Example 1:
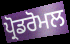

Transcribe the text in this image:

ਪ੍ਰੋਡਰੋਮਲ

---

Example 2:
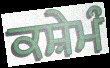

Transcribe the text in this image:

ਕਸ਼ੇਮੰ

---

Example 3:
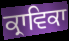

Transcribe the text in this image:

ਕ੍ਰਾਵਿਕਾ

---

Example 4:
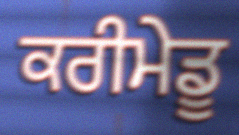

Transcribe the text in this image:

ਕਰੀਮੇਡੂ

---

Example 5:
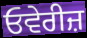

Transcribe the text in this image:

ਓਵੇਰੀਜ਼